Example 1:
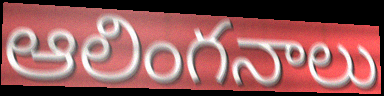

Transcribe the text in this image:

ఆలింగనాలు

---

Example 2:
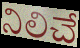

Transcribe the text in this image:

నిలిచే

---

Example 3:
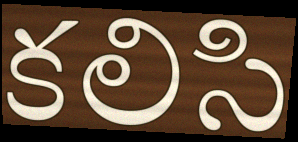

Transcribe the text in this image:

కలిసి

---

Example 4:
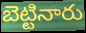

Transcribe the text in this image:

బెట్టినారు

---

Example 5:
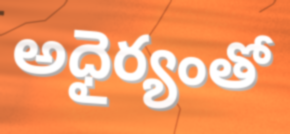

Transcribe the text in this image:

అధైర్యంతో